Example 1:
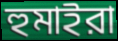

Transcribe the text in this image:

হুমাইরা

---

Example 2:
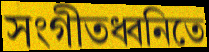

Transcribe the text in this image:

সংগীতধ্বনিতে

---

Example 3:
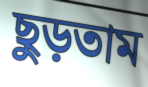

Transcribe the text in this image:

ছুড়তাম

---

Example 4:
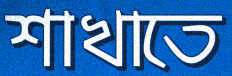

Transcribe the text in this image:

শাখাতে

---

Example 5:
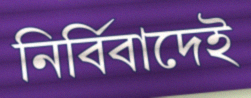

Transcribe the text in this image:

নির্বিবাদেই